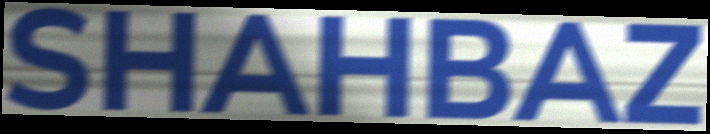
SHAHBAZ